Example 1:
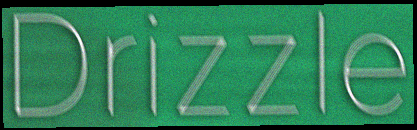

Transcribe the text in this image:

Drizzle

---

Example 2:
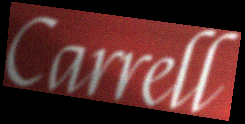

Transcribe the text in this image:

Carrell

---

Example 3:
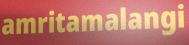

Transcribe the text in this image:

amritamalangi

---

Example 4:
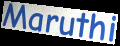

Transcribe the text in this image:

Maruthi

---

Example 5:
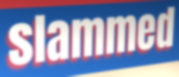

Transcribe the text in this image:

slammed